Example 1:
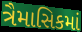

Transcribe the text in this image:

ત્રૈમાસિકમાં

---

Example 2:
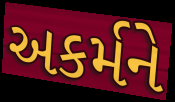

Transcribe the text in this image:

અકર્મને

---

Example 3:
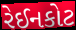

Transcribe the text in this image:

રેઈનકોટ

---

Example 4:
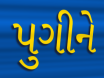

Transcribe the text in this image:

પુગીને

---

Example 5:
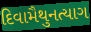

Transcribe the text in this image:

દિવામૈથુનત્યાગ